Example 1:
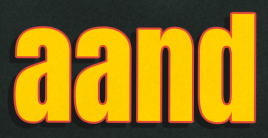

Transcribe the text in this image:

aand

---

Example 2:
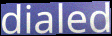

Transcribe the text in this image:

dialed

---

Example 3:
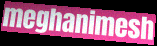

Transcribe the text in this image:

meghanimesh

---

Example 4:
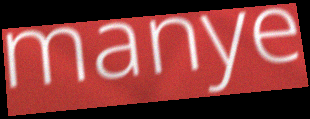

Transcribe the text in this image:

manye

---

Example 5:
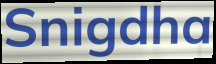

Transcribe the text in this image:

Snigdha